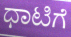
ಧಾಟಿಗೆ